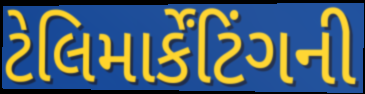
ટેલિમાર્કેંટિંગની